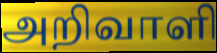
அறிவாளி